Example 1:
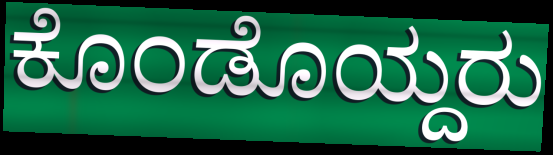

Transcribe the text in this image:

ಕೊಂಡೊಯ್ದರು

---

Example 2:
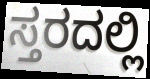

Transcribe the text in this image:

ಸ್ತರದಲ್ಲಿ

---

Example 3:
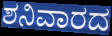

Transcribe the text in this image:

ಶನಿವಾರದ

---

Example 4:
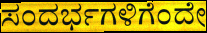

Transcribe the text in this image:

ಸಂದರ್ಭಗಳಿಗೆಂದೇ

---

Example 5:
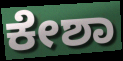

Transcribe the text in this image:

ಕೇಶಾ